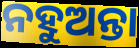
ନହୁଅନ୍ତା